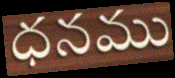
ధనము